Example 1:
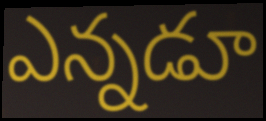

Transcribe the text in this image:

ఎన్నడూ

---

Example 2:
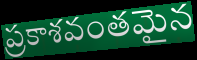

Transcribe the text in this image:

ప్రకాశవంతమైన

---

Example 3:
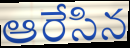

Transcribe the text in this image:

ఆరేసిన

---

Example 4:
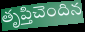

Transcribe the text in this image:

తృప్తిచెందిన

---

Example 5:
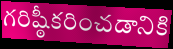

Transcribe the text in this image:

గరిష్ఠీకరించడానికి